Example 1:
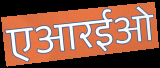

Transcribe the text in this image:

एआरईओ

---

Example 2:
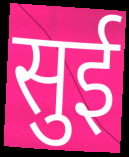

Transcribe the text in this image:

सुई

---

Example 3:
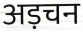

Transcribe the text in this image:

अड़चन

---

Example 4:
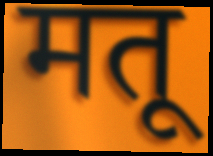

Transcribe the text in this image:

मतू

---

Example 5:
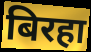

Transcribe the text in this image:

बिरहा